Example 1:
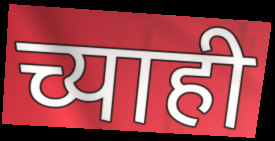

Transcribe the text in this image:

च्याही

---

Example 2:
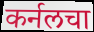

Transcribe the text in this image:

कर्नलचा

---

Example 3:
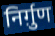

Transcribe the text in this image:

निर्ग़ुण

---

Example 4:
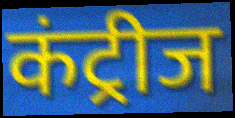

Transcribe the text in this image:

कंट्रीज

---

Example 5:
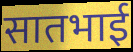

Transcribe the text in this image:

सातभाई